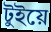
টুইয়ে